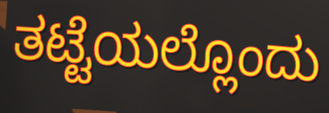
ತಟ್ಟೆಯಲ್ಲೊಂದು